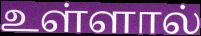
உள்ளால்